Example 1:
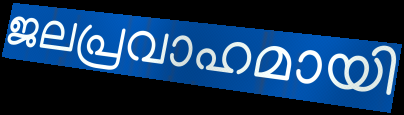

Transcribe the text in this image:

ജലപ്രവാഹമായി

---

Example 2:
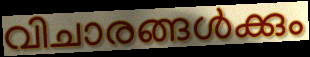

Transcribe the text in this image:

വിചാരങ്ങൾക്കും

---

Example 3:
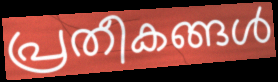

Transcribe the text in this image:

പ്രതീകങ്ങൾ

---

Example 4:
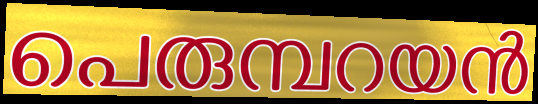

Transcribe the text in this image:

പെരുമ്പറയൻ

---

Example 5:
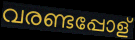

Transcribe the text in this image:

വരണ്ടപ്പോള്